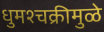
धुमश्चक्रीमुळे